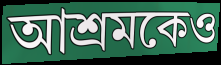
আশ্রমকেও